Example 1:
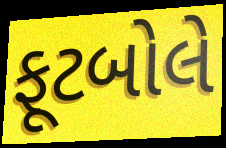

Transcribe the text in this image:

ફૂટબોલે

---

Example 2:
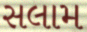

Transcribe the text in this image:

સલામ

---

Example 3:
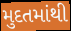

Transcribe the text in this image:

મુદતમાંથી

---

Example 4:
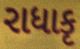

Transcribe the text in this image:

રાધાકૃ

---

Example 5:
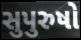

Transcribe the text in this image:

સુપુરુષો